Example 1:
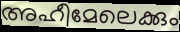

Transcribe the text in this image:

അഹീമേലെക്കും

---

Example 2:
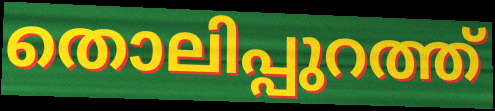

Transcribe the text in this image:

തൊലിപ്പുറത്ത്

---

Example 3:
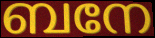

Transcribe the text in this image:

ബനേ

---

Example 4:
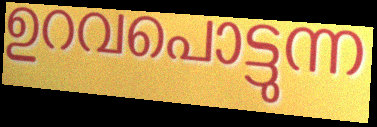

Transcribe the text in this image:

ഉറവപൊട്ടുന്ന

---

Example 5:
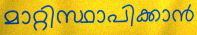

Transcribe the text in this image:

മാറ്റിസ്ഥാപിക്കാൻ